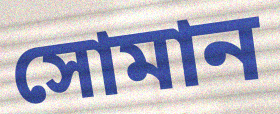
সোমান